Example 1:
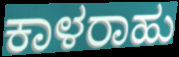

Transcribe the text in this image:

ಕಾಳರಾಹು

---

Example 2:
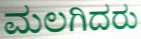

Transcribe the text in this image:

ಮಲಗಿದರು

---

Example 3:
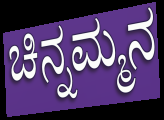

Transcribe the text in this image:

ಚಿನ್ನಮ್ಮನ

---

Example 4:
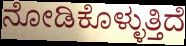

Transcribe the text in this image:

ನೋಡಿಕೊಳ್ಳುತ್ತಿದೆ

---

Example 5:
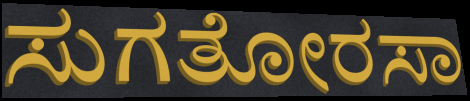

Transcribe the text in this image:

ಸುಗತೋರಸಾ